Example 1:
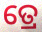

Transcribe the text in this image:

ତ୍ରେ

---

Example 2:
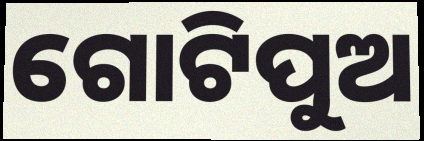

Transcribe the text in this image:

ଗୋଟିପୁଅ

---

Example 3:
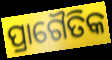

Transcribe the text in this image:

ପ୍ରାଗୈତିକ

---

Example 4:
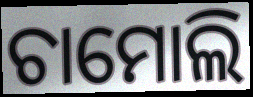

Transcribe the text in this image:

ଚାମୋଲି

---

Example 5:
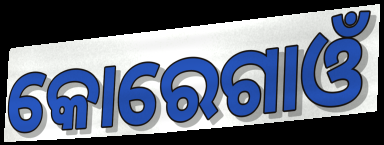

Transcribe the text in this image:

କୋରେଗାଓଁ